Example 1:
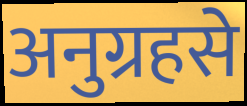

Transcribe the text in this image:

अनुग्रहसे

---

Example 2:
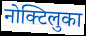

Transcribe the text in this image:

नोक्टिलुका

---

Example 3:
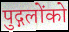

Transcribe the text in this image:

पुद्गलोंको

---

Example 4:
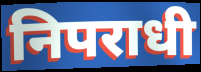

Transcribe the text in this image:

निपराधी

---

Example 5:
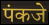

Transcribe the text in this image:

पंकजे